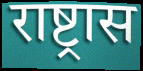
राष्ट्रास